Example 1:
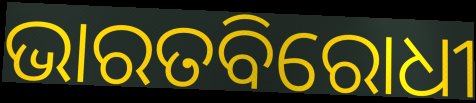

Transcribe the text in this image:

ଭାରତବିରୋଧୀ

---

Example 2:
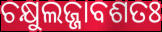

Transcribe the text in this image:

ଚକ୍ଷୁଲଜ୍ଜାବଶତଃ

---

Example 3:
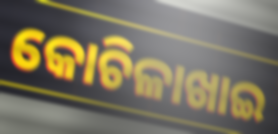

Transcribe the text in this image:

କୋଚିଳାଖାଇ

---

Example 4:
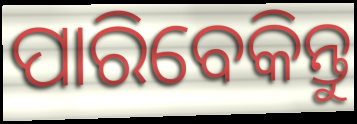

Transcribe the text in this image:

ପାରିବେକିନ୍ତୁ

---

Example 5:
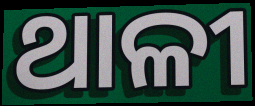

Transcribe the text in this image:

ଥାଳୀ